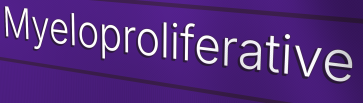
Myeloproliferative